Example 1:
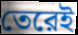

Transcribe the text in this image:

তেরেই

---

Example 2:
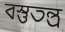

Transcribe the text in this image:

বস্তুতন্ত্র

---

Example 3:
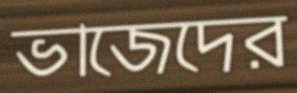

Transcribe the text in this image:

ভাজেদের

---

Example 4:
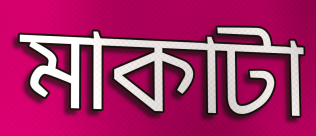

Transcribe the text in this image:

মাকাটা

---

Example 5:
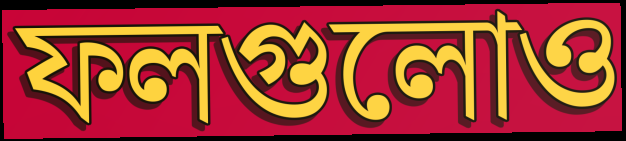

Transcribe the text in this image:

ফলগুলোও